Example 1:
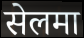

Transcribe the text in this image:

सेलमा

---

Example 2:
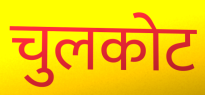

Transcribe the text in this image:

चुलकोट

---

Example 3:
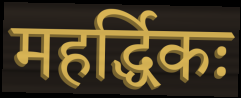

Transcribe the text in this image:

महर्द्धिकः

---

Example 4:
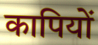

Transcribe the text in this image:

कापियों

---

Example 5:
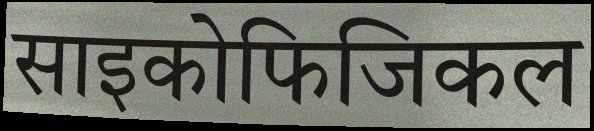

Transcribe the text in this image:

साइकोफिजिकल